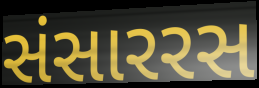
સંસારરસ